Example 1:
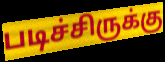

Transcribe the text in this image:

படிச்சிருக்கு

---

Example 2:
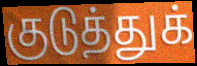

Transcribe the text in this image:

குடுத்துக்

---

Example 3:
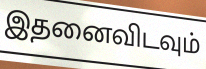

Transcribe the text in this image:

இதனைவிடவும்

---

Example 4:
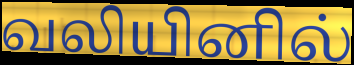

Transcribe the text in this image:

வலியினில்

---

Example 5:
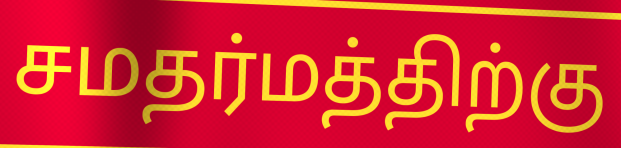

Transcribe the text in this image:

சமதர்மத்திற்கு